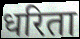
धरिता